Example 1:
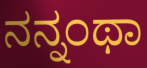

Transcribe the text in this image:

ನನ್ನಂಥಾ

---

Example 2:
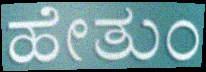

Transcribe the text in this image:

ಹೇತುಂ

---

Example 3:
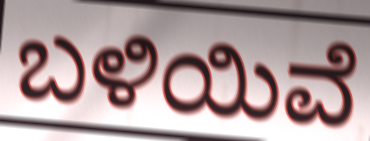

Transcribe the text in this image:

ಬಳಿಯಿವೆ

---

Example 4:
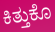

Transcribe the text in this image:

ಕಿತ್ತುಕೊ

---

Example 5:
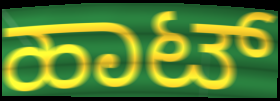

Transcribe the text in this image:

ಹಾಟ್